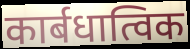
कार्बधात्विक